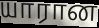
யாரான